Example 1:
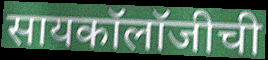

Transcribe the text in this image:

सायकॉलॉजीची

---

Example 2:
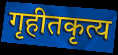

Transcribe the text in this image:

गृहीतकृत्य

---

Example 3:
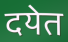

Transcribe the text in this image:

दयेत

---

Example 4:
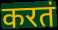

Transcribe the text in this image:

करतं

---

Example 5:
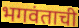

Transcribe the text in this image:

भगवंताची